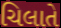
ચિલાતે